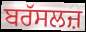
ਬਰੱਸਲਜ਼